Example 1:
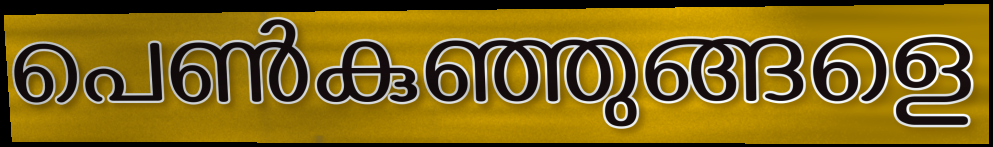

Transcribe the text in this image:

പെൺകുഞ്ഞുങ്ങളെ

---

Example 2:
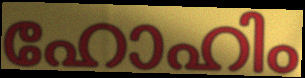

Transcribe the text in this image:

ഹോഹിം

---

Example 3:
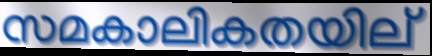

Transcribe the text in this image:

സമകാലികതയില്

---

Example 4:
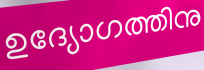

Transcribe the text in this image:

ഉദ്യോഗത്തിനു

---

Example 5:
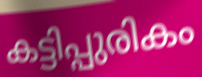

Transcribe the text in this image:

കട്ടിപ്പുരികം